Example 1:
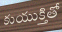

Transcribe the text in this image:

కుయుక్తితో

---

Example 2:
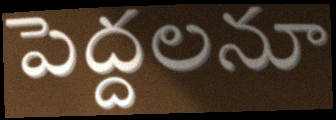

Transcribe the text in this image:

పెద్దలనూ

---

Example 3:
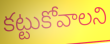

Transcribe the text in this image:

కట్టుకోవాలని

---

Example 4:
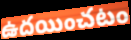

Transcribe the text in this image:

ఉదయించటం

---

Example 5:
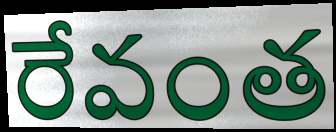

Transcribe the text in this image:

రేవంత